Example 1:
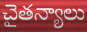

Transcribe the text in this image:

చైతన్యాలు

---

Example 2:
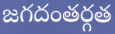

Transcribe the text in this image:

జగదంతర్గత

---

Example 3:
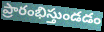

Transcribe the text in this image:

ప్రారంభిస్తుండడం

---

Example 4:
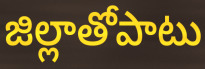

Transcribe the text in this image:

జిల్లాతోపాటు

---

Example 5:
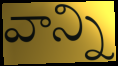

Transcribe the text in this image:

వాన్ని